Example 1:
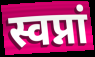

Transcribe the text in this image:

स्वप्नां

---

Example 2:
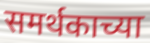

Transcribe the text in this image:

समर्थकाच्या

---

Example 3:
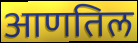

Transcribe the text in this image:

आणतिल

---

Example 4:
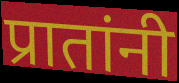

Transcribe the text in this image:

प्रातांनी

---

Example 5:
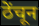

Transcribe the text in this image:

ठेंचून